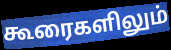
கூரைகளிலும்